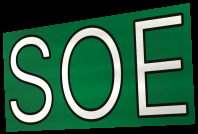
SOE